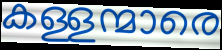
കള്ളന്മാരെ